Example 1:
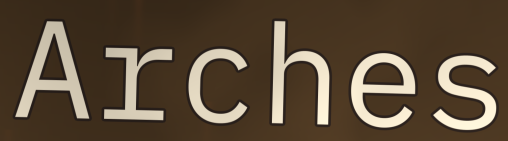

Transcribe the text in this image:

Arches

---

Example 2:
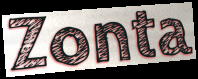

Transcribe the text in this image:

Zonta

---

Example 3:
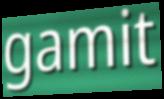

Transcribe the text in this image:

gamit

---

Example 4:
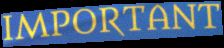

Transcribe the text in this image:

IMPORTANT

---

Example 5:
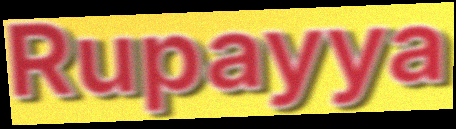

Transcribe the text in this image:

Rupayya